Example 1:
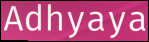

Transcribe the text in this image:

Adhyaya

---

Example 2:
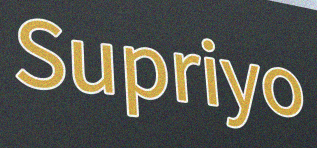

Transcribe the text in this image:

Supriyo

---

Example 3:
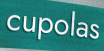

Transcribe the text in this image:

cupolas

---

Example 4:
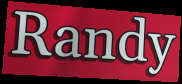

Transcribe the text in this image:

Randy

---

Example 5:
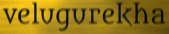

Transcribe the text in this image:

velugurekha